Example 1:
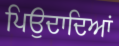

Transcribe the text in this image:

ਪਿਉਦਾਦਿਆਂ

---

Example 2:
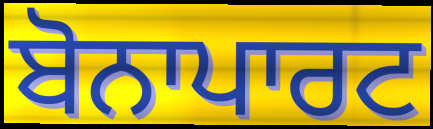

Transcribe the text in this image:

ਬੋਨਾਪਾਰਟ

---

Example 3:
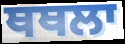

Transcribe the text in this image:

ਥਥਲਾ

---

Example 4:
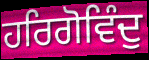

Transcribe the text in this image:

ਹਰਿਗੋਵਿੰਦੁ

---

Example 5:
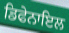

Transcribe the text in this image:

ਡਿਫੇਨਾਇਲ